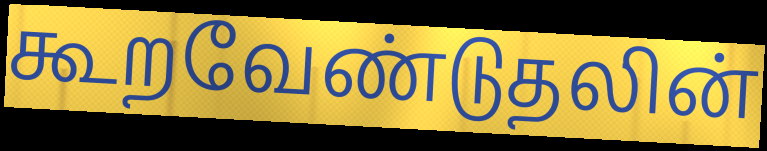
கூறவேண்டுதலின்